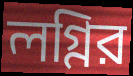
লগ্নির